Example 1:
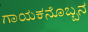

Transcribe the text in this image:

ಗಾಯಕನೊಬ್ಬನ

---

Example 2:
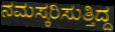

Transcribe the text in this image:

ನಮಸ್ಕರಿಸುತ್ತಿದ್ದ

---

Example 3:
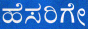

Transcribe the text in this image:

ಹೆಸರಿಗೇ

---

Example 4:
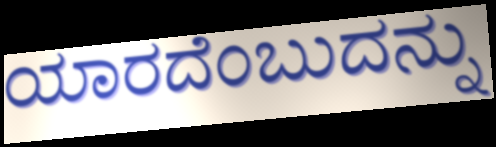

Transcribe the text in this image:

ಯಾರದೆಂಬುದನ್ನು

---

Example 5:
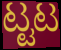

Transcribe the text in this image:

ಟ್ಟಟ